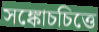
সঙ্কোচচিত্তে